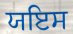
ਯਇਸ